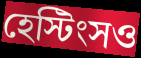
হেস্টিংসও